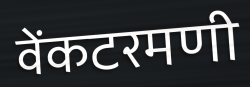
वेंकटरमणी